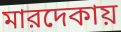
মারদেকায়